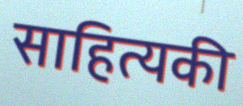
साहित्यकी